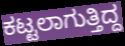
ಕಟ್ಟಲಾಗುತ್ತಿದ್ದ